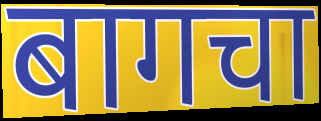
बागचा